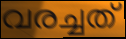
വരച്ചത്